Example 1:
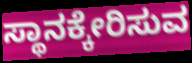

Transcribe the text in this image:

ಸ್ಥಾನಕ್ಕೇರಿಸುವ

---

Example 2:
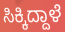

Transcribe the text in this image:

ಸಿಕ್ಕಿದ್ದಾಳೆ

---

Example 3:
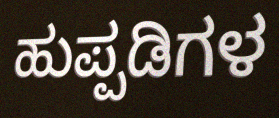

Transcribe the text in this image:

ಹುಪ್ಪಡಿಗಳ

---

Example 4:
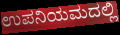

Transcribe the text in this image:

ಉಪನಿಯಮದಲ್ಲಿ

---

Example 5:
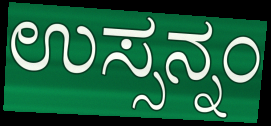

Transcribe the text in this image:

ಉಸ್ಸನ್ನಂ